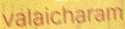
valaicharam